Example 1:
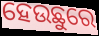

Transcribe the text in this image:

ହେଉଛୁରେ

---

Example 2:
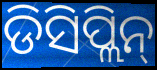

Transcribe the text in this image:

ଡିସିପ୍ଲିନ୍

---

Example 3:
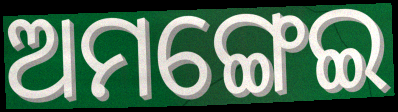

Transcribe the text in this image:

ଅମଙ୍ଗେଇ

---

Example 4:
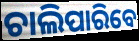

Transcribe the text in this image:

ଚାଲିପାରିବେ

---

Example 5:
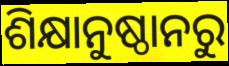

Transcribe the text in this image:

ଶିକ୍ଷାନୁଷ୍ଠାନରୁ